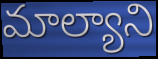
మాల్యాని